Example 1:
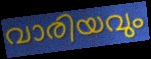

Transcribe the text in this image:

വാരിയവും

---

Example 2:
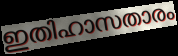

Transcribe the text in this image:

ഇതിഹാസതാരം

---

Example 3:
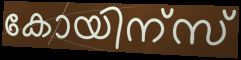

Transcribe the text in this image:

കോയിന്സ്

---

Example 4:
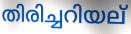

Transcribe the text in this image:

തിരിച്ചറിയല്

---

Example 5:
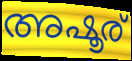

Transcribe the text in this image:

അഷൂര്